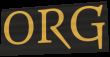
ORG